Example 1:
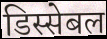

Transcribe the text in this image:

डिस्सेबल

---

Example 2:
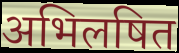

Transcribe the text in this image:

अभिलषित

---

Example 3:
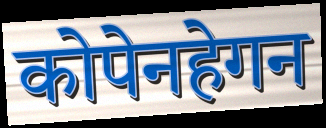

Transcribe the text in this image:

कोपेनहेगन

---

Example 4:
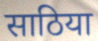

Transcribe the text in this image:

साठिया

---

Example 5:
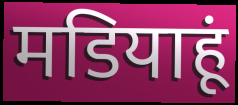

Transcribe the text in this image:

मडियाहूं